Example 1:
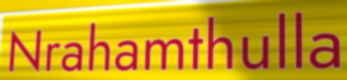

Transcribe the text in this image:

Nrahamthulla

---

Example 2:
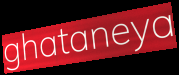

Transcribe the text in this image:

ghataneya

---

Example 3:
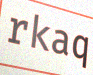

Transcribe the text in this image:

rkaq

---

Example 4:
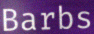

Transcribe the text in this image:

Barbs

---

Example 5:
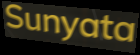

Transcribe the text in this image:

Sunyata